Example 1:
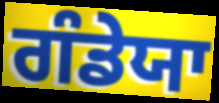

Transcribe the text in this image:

ਗੰਡੇਯਾ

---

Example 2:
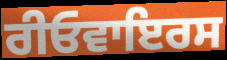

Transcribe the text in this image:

ਰੀਓਵਾਇਰਸ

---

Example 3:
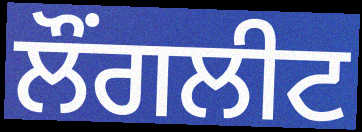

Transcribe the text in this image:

ਲੌਂਗਲੀਟ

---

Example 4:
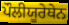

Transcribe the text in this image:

ਪੌਲੀਯੂਰੇਥੇਨ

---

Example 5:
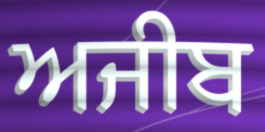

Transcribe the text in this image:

ਅਜੀਬ